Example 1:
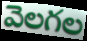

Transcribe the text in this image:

వెలగల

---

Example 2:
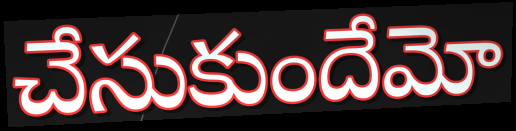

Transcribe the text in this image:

చేసుకుందేమో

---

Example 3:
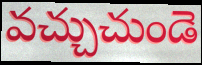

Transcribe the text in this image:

వచ్చుచుండె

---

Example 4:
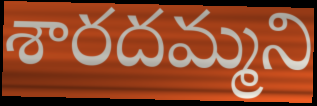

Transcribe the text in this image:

శారదమ్మని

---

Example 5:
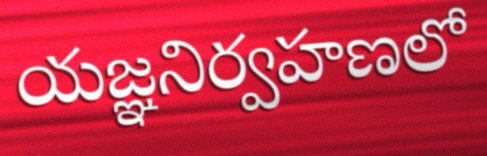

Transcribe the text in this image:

యజ్ఞనిర్వహణలో